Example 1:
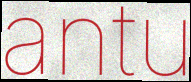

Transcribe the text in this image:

antu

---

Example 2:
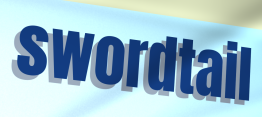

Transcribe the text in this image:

swordtail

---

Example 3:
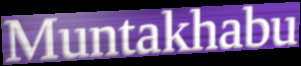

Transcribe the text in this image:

Muntakhabu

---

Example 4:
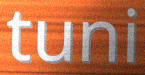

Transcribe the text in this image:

tuni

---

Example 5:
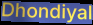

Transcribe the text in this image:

Dhondiyal